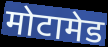
मोटामेड